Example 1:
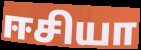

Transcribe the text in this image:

ஈசியா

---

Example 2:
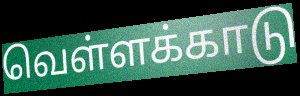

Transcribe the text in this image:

வெள்ளக்காடு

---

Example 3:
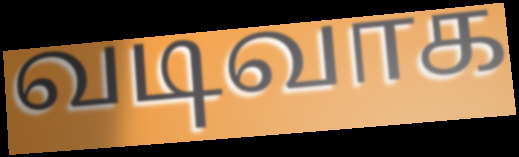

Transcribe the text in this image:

வடிவாக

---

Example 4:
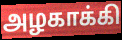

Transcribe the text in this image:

அழகாக்கி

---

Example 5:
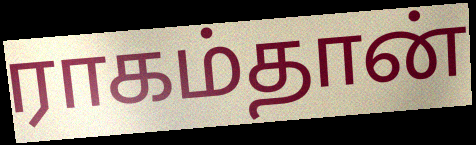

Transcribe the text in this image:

ராகம்தான்